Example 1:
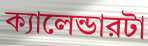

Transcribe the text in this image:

ক্যালেন্ডারটা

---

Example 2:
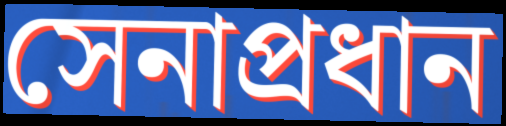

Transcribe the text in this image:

সেনাপ্রধান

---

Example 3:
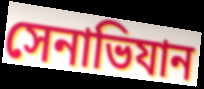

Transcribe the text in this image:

সেনাভিযান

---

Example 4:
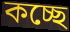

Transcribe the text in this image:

কচ্ছে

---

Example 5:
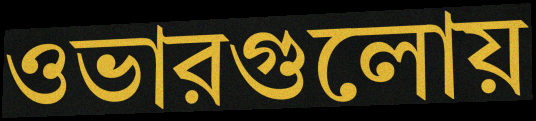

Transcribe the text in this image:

ওভারগুলোয়